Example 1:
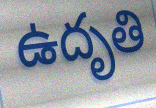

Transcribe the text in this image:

ఉదృతి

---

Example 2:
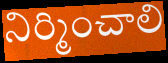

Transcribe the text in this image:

నిర్మించాలి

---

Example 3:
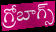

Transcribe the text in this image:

గ్రోబాగ్స్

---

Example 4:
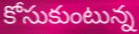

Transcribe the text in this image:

కోసుకుంటున్న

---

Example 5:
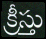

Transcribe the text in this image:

క్రీస్తు